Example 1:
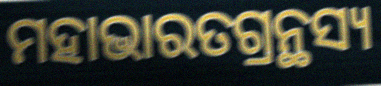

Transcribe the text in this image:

ମହାଭାରତଗ୍ରନ୍ଥସ୍ୟ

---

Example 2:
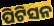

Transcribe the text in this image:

ପିଟିସନ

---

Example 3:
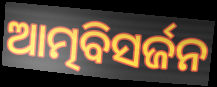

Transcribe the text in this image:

ଆତ୍ମବିସର୍ଜନ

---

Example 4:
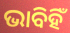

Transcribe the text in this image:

ଭାବିହିଁ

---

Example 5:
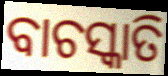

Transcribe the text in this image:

ବାଚସ୍କାତି